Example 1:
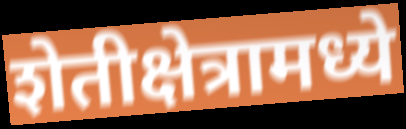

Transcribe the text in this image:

शेतीक्षेत्रामध्ये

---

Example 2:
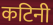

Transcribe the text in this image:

कटिनी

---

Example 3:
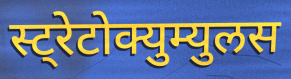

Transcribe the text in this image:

स्ट्रेटोक्युम्युलस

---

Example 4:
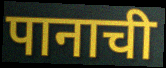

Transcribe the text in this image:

पानाची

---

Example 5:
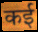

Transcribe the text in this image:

कई